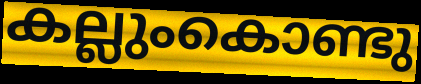
കല്ലുംകൊണ്ടു